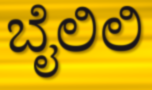
ಬೈಲಿಲಿ